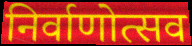
निर्वाणोत्सव